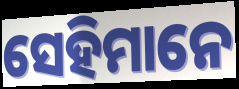
ସେହିମାନେ